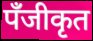
पँजीकृत